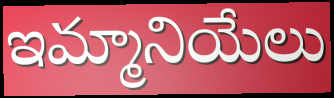
ఇమ్మానియేలు